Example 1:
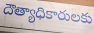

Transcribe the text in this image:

దౌత్యాధికారులకు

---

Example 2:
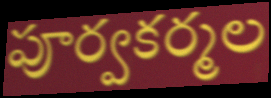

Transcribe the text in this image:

పూర్వకర్మల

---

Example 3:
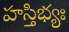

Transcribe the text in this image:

హస్తిభ్యః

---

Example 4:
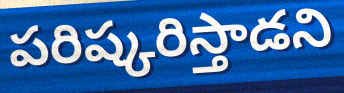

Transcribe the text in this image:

పరిష్కరిస్తాడని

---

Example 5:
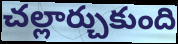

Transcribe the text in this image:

చల్లార్చుకుంది